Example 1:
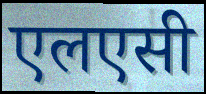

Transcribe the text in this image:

एलएसी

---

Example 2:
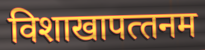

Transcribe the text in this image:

विशाखापत्‍तनम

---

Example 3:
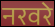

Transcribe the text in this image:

नरवरे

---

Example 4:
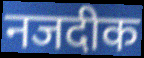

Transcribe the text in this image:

नजदीक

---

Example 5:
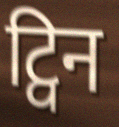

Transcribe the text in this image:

ट्विन